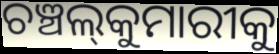
ଚଞ୍ଚଲ୍‍କୁମାରୀକୁ